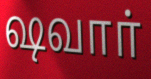
ஷவார்